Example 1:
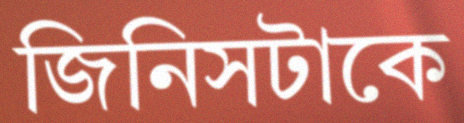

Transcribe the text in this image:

জিনিসটাকে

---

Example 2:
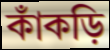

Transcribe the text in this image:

কাঁকড়ি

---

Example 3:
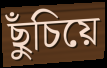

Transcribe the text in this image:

ছুঁচিয়ে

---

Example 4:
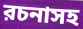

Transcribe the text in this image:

রচনাসহ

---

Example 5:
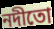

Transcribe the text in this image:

নদীতো